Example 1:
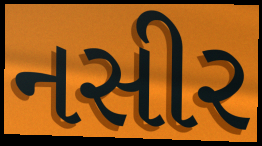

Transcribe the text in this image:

નસીર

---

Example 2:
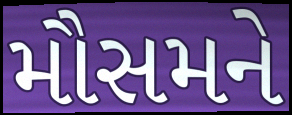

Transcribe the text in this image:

મૌસમને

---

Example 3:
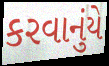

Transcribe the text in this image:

કરવાનુંયે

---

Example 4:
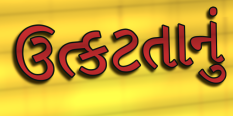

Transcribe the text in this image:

ઉત્કટતાનું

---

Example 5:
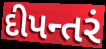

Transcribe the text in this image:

દીપન્તરં